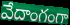
వేదాంగంగా